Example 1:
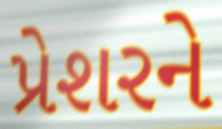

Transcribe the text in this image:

પ્રેશરને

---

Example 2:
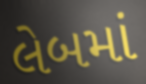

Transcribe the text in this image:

લેબમાં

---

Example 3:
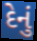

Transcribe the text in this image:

દેનું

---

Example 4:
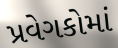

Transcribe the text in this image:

પ્રવેગકોમાં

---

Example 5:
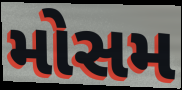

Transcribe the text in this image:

મોસમ